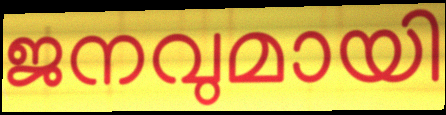
ജനവുമായി